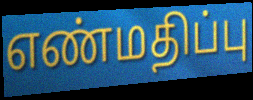
எண்மதிப்பு